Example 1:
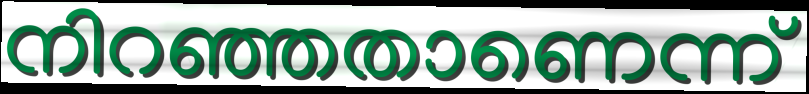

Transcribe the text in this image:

നിറഞ്ഞതാണെന്ന്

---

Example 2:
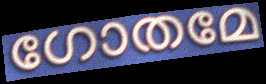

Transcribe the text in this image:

ഗോതമേ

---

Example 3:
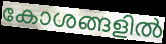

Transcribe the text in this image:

കോശങ്ങളിൽ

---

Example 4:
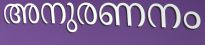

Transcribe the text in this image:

അനുരണനം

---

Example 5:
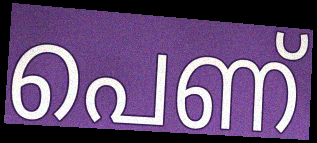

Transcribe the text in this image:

പെണ്